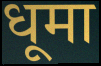
धूमा